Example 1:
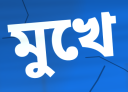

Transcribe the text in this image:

মুখে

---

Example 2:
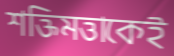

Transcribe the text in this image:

শক্তিমত্তাকেই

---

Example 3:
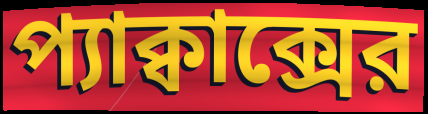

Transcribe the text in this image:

প্যাক্বাক্সের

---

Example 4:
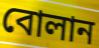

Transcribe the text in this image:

বোলান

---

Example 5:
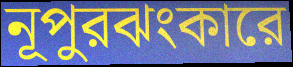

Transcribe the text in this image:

নূপুরঝংকারে